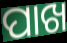
ପାଖ